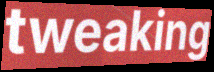
tweaking